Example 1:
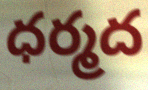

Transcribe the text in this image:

ధర్మద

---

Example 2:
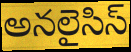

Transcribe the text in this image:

అనలైసిస్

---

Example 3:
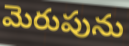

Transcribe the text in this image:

మెరుపును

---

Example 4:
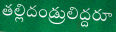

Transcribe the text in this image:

తల్లిదండ్రులిద్దరూ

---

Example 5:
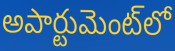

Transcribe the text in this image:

అపార్టుమెంట్‌లో